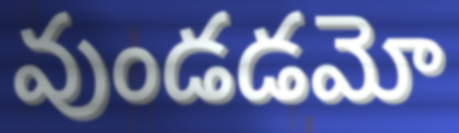
వుండడమో